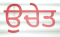
ਉਚੇਤ